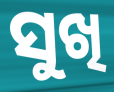
ସୁଖି